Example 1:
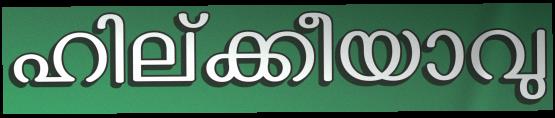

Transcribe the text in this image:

ഹില്ക്കീയാവു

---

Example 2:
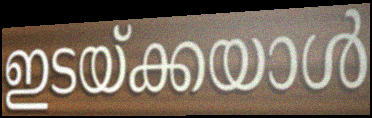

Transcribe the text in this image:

ഇടയ്ക്കയാൾ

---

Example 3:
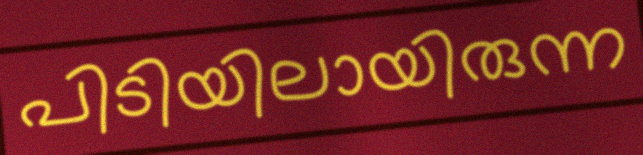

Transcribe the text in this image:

പിടിയിലായിരുന്ന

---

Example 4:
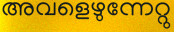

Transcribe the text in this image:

അവളെഴുന്നേറ്റു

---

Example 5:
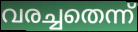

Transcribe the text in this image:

വരച്ചതെന്ന്